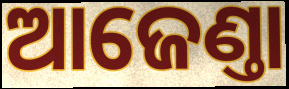
ଆଜେଣ୍ତା